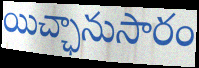
యిచ్ఛానుసారం